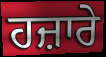
ਹਜ਼ਾਰੇ